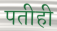
पतीही